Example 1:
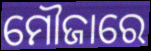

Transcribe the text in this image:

ମୌଜାରେ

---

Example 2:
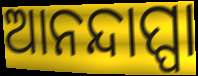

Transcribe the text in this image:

ଆନନ୍ଦାପ୍ପା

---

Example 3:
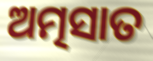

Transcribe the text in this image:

ଅତ୍ମସାତ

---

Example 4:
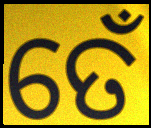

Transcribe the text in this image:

ତେଁ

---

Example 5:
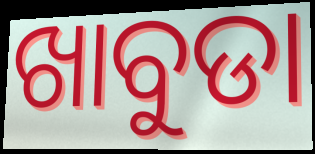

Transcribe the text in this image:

ଖାବୁଡା